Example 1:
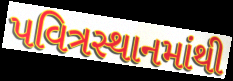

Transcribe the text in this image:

પવિત્રસ્થાનમાંથી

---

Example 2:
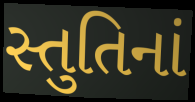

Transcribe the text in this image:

સ્તુતિનાં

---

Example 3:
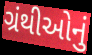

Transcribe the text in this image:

ગ્રંથીઓનું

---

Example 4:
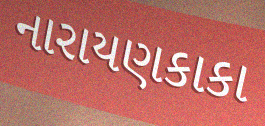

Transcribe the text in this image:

નારાયણકાકા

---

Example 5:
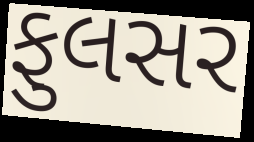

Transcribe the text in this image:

ફુલસર